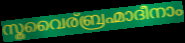
സ്തവൈര്ബ്രഹ്മാദീനാം